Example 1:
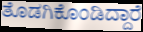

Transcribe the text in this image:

ತೊಡಗಿಕೊಂಡಿದ್ದಾರೆ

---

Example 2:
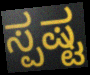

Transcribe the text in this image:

ಸ್ಪಷ್ಟ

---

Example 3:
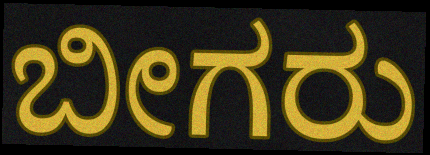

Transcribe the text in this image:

ಬೀಗರು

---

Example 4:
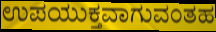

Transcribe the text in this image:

ಉಪಯುಕ್ತವಾಗುವಂತಹ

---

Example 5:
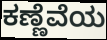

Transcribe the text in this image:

ಕಣ್ಣೆವೆಯ